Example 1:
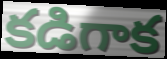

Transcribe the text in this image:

కడిగాక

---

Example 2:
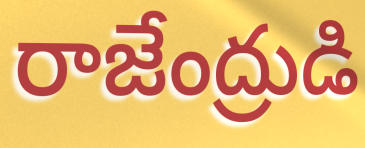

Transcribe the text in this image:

రాజేంద్రుడి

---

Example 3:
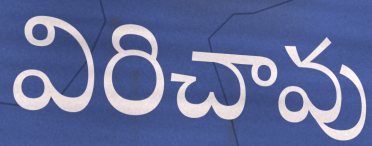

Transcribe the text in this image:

విరిచావు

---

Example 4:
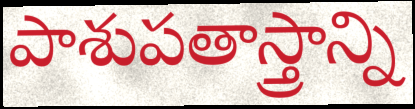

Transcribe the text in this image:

పాశుపతాస్త్రాన్ని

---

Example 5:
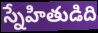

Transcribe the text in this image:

స్నేహితుడిది